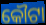
କୌଟା